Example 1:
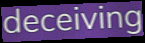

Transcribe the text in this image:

deceiving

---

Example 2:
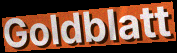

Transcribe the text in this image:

Goldblatt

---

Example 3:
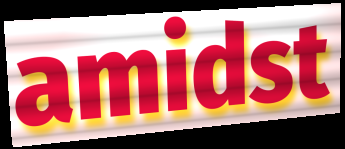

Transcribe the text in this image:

amidst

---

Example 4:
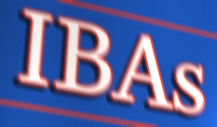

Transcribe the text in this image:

IBAs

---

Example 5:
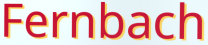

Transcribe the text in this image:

Fernbach